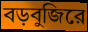
বড়বুজিরে